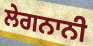
ਲੇਗਨਾਨੀ